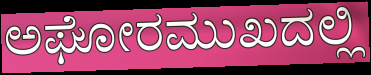
ಅಘೋರಮುಖದಲ್ಲಿ